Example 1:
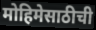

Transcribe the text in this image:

मोहिमेसाठीची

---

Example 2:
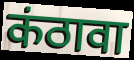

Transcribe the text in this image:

कंठावा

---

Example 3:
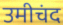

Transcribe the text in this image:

उमीचंद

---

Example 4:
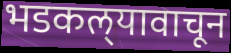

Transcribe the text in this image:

भडकल्यावाचून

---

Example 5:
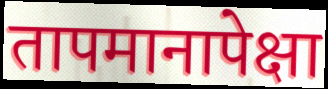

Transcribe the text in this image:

तापमानापेक्षा